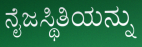
ನೈಜಸ್ಥಿತಿಯನ್ನು